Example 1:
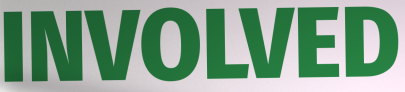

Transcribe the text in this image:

INVOLVED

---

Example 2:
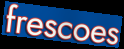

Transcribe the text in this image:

frescoes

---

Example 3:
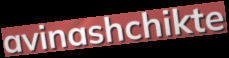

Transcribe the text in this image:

avinashchikte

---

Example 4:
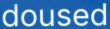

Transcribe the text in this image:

doused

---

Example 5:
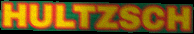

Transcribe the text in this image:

HULTZSCH